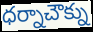
ధర్నాచౌక్ను